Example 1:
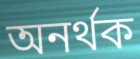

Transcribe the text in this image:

অনৰ্থক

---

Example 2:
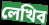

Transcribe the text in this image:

লেখিব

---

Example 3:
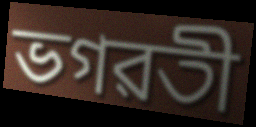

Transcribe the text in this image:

ভগৱতী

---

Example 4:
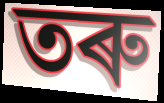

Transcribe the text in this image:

তৰু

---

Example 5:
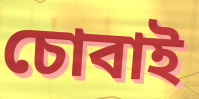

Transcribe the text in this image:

চোবাই